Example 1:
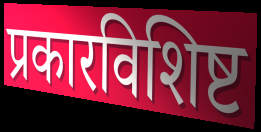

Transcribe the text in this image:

प्रकारविशिष्ट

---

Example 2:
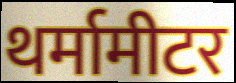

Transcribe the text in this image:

थर्मामीटर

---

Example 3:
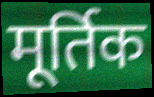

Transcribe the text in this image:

मूर्तिक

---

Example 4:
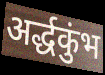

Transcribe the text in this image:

अर्द्धकुंभ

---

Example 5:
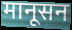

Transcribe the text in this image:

मानूसन